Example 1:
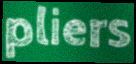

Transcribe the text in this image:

pliers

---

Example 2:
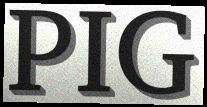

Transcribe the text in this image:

PIG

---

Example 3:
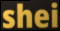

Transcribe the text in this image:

shei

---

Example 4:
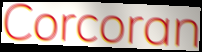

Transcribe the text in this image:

Corcoran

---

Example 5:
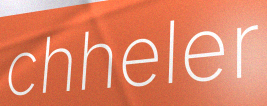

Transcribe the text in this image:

chheler